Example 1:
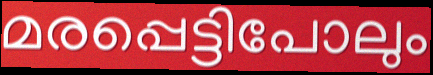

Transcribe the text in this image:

മരപ്പെട്ടിപോലും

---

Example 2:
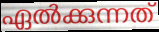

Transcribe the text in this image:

ഏൽക്കുന്നത്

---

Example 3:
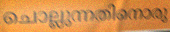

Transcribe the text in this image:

ചൊല്ലുന്നതിനൊരു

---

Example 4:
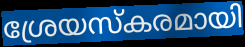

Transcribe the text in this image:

ശ്രേയസ്കരമായി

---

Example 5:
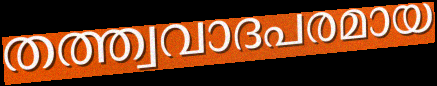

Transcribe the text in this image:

തത്ത്വവാദപരമായ